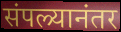
संपल्यानंतर